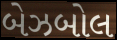
બેઝબોલ